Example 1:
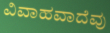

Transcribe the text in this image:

ವಿವಾಹವಾದೆವು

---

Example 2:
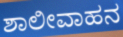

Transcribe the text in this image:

ಶಾಲೀವಾಹನ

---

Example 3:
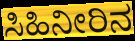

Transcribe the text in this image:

ಸಿಹಿನೀರಿನ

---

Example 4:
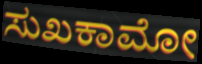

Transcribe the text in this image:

ಸುಖಕಾಮೋ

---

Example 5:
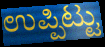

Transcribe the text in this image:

ಉಪ್ಪಿಟ್ಟು